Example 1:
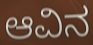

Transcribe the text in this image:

ಆವಿನ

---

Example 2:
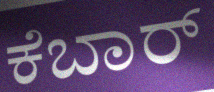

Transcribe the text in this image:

ಕೆಬಾರ್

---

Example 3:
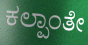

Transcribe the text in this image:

ಕಲ್ಪಾಂತೇ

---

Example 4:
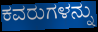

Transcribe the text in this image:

ಕವರುಗಳನ್ನು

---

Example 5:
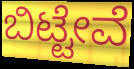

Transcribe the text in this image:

ಬಿಟ್ಟೇವೆ